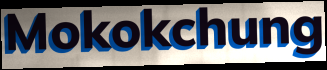
Mokokchung